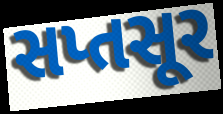
સપ્તસૂર